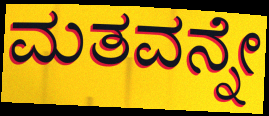
ಮತವನ್ನೇ